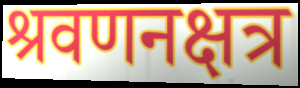
श्रवणनक्षत्र